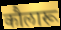
कौलारू